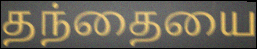
தந்தையை